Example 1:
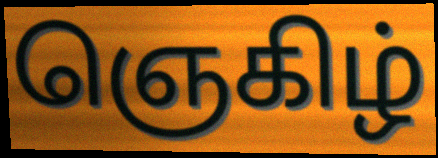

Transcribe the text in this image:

ஞெகிழ்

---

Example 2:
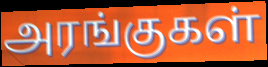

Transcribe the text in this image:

அரங்குகள்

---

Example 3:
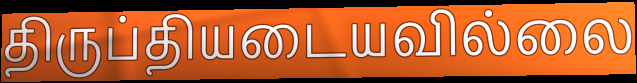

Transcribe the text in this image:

திருப்தியடையவில்லை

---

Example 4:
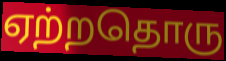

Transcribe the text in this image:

ஏற்றதொரு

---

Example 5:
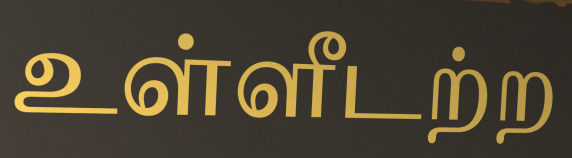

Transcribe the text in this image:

உள்ளீடற்ற